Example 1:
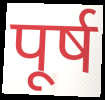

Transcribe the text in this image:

पूर्ष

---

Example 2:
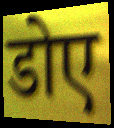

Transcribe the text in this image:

डोए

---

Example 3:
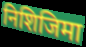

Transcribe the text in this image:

निशिजिमा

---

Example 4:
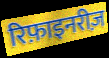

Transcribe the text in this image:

रिफ़ाइनरीज़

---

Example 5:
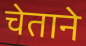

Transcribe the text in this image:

चेताने